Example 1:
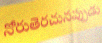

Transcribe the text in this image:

నోరుతెరచునప్పుడు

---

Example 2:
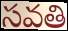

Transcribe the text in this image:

సవతి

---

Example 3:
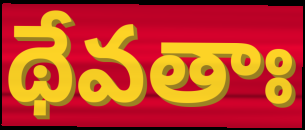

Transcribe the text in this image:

థేవతాః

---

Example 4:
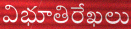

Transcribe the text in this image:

విభూతిరేఖలు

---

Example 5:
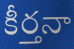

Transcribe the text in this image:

కీర్తనా